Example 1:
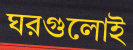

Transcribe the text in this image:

ঘরগুলোই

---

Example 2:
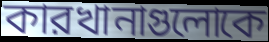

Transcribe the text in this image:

কারখানাগুলোকে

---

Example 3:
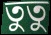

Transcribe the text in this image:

তুতু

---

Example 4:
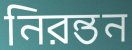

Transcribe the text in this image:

নিরন্তন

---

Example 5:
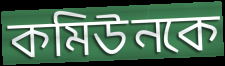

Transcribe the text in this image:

কমিউনকে